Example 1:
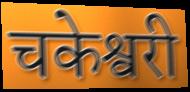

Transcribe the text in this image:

चकेश्वरी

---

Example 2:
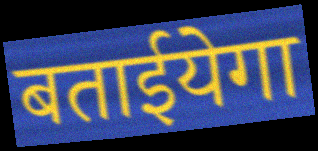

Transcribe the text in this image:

बताईयेगा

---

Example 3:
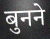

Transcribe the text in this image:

बुनने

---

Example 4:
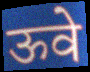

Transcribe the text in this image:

ऊवे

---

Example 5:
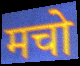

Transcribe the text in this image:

मचो